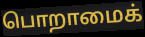
பொறாமைக்